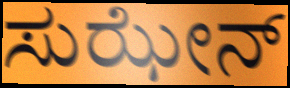
ಸುಝೇನ್